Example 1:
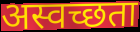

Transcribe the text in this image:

अस्वच्छता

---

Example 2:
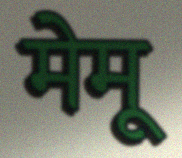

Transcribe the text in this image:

मेमू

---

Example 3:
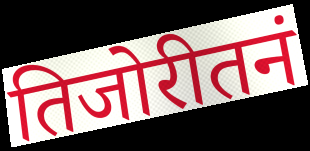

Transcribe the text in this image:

तिजोरीतनं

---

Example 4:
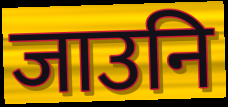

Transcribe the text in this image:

जाउनि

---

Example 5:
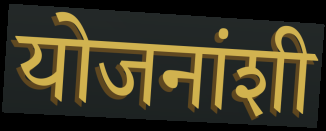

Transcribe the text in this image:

योजनांशी